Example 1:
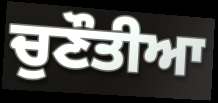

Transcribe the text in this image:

ਚੁਣੌਤੀਆ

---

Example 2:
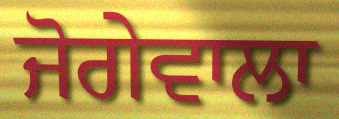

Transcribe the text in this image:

ਜੋਗੇਵਾਲਾ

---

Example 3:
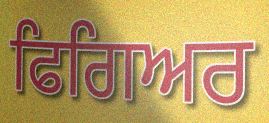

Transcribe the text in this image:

ਫਿਗਿਅਰ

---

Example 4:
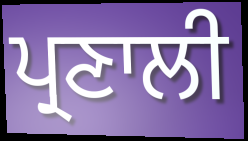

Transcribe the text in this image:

ਪ੍ਰਣਾਲੀ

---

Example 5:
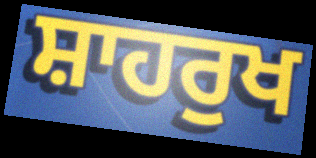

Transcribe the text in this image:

ਸ਼ਾਹਰੁਖ